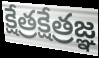
క్షేత్రక్షేత్రజ్ఞ